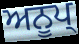
ਅਨੂਪ੍